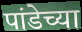
पांडेच्या